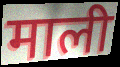
माली